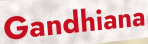
Gandhiana